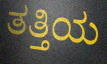
ತತ್ತಿಯ